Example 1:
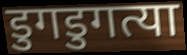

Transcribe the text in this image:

डुगडुगत्या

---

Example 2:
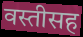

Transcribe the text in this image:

वस्तीसह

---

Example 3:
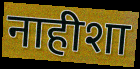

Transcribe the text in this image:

नाहीशा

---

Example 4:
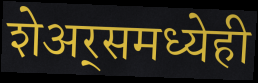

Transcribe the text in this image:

शेअर्समध्येही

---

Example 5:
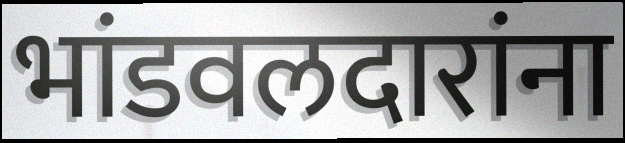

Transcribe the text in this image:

भांडवलदारांना